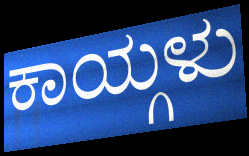
ಕಾಯ್ಗಳು